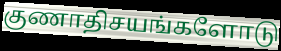
குணாதிசயங்களோடு